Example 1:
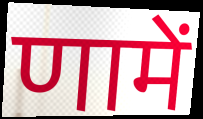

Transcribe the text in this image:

णामें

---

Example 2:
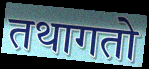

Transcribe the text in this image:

तथागतो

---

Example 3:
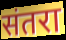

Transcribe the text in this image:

संतरा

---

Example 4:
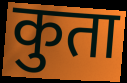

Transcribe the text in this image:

कुता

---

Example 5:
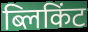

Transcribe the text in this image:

ब्लिकिंट